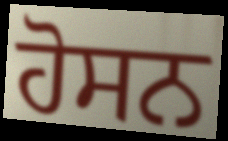
ਹੋਸਨ